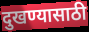
दुखण्यासाठी